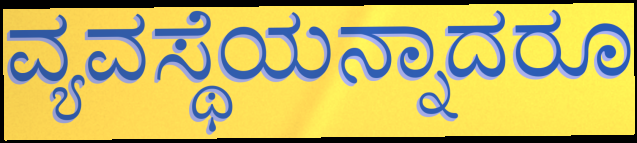
ವ್ಯವಸ್ಥೆಯನ್ನಾದರೂ